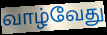
வாழ்வேது